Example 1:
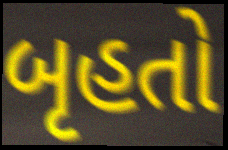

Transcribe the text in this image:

બૃહતો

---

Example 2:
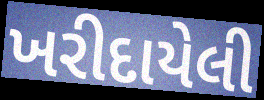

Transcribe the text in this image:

ખરીદાયેલી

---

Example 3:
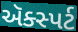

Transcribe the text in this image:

ઍક્સ્પર્ટ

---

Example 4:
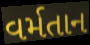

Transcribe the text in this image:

વર્મતાન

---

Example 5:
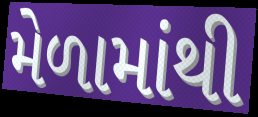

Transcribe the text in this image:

મેળામાંથી